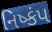
નિષ્કંપ